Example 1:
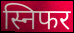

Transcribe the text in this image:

स्निफर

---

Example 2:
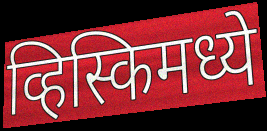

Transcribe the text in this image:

व्हिस्किमध्ये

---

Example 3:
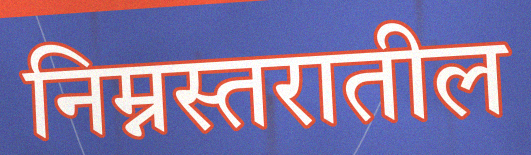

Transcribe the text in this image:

निम्नस्तरातील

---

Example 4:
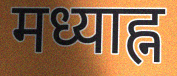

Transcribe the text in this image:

मध्याह्न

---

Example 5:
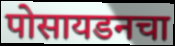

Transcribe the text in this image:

पोसायडनचा